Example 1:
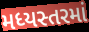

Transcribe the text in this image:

મધ્યસ્તરમાં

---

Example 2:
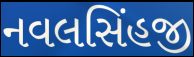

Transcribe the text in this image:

નવલસિંહજી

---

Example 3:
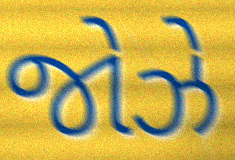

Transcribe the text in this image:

જોઝે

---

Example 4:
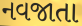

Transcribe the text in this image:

નવજાતા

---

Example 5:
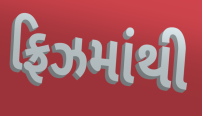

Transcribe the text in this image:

ફ્રિઝમાંથી